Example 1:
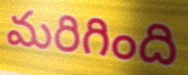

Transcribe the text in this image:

మరిగింది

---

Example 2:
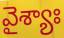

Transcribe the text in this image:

వైశ్యాః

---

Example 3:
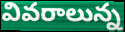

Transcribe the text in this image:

వివరాలున్న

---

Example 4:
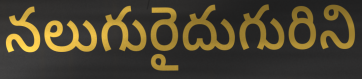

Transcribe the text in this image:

నలుగురైదుగురిని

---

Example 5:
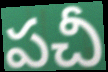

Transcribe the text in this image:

పచీ